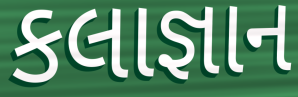
કલાજ્ઞાન